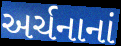
અર્ચનાનાં